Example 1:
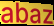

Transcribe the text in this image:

abaz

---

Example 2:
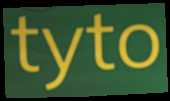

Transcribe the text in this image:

tyto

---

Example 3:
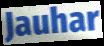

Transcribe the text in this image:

Jauhar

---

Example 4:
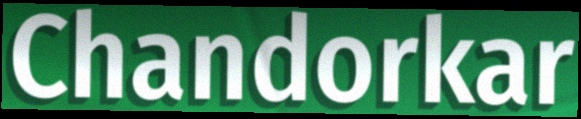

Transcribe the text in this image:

Chandorkar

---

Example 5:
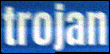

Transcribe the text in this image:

trojan